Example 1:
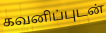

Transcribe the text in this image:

கவனிப்புடன்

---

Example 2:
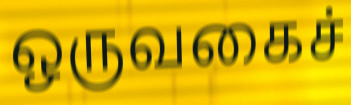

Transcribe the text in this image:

ஒருவகைச்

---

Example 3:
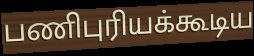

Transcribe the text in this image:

பணிபுரியக்கூடிய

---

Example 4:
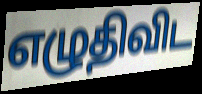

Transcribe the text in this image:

எழுதிவிட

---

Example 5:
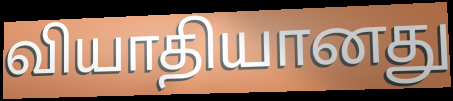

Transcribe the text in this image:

வியாதியானது